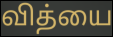
வித்யை